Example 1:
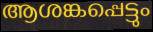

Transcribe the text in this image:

ആശങ്കപ്പെട്ടും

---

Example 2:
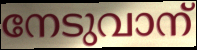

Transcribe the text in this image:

നേടുവാന്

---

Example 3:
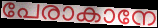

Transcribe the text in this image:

പേരാകാനേ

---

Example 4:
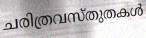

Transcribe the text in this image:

ചരിത്രവസ്തുതകൾ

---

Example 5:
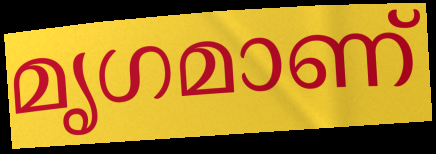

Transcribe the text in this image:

മൃഗമാണ്